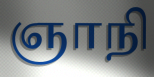
ஞாநி